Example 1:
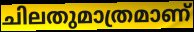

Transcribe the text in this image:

ചിലതുമാത്രമാണ്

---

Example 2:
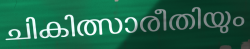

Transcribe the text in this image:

ചികിത്സാരീതിയും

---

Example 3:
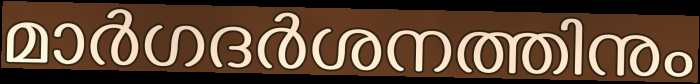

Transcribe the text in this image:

മാർഗദർശനത്തിനും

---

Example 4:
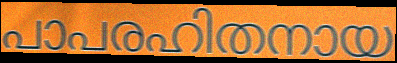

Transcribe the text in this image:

പാപരഹിതനായ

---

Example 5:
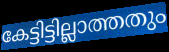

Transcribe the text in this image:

കേട്ടിട്ടില്ലാത്തതും